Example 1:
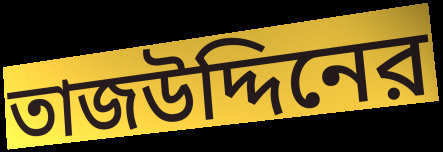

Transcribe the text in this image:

তাজউদ্দিনের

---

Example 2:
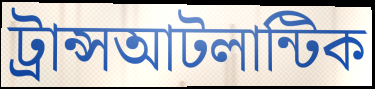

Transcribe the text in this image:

ট্রান্সআটলান্টিক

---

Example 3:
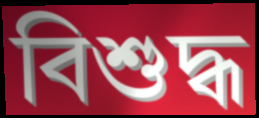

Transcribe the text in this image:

বিশুদ্ধ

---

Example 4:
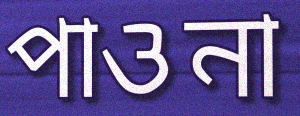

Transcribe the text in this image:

পাওনা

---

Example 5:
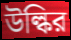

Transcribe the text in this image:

উল্কির